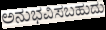
ಅನುಭವಿಸಬಹುದು